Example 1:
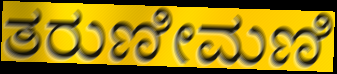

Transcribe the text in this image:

ತರುಣೀಮಣಿ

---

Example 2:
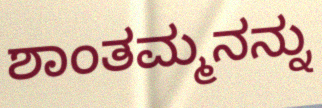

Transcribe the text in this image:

ಶಾಂತಮ್ಮನನ್ನು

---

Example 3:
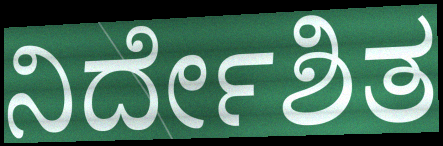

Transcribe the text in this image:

ನಿರ್ದೇಶಿತ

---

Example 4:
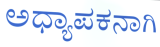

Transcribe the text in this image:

ಅಧ್ಯಾಪಕನಾಗಿ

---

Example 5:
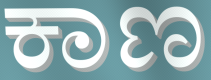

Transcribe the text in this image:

ಕಾಣ